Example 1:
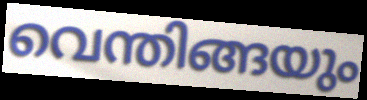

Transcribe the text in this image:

വെന്തിങ്ങയും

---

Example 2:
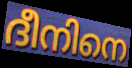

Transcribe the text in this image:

ദീനിനെ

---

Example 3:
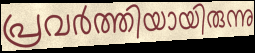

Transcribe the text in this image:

പ്രവർത്തിയായിരുന്നു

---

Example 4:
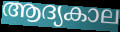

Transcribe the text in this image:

ആദ്യകാല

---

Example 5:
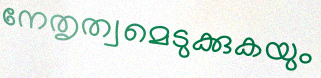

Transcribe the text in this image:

നേതൃത്വമെടുക്കുകയും